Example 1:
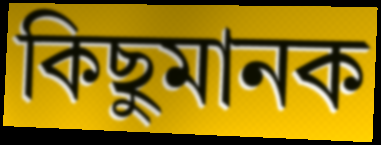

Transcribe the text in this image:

কিছুমানক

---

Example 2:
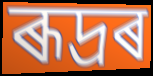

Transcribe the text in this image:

ৰূদ্ৰৰ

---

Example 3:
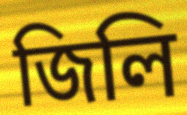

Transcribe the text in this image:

জিলি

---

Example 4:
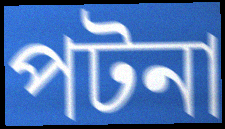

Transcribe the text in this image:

পটনা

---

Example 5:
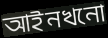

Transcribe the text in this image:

আইনখনো